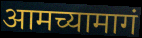
आमच्यामागं